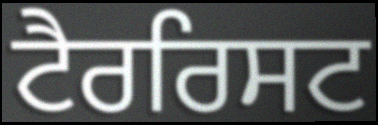
ਟੈਰਰਿਸਟ